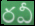
రవీ